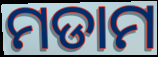
ମଡାମ